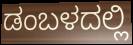
ಡಂಬಳದಲ್ಲಿ